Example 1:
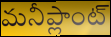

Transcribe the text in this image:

మనీప్లాంట్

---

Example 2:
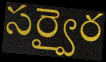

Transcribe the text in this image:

సర్వైర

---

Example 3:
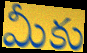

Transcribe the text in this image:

మీకు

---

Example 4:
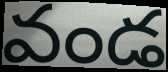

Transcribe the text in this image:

వండ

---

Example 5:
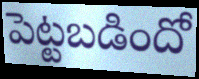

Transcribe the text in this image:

పెట్టబడిందో